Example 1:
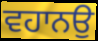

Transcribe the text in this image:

ਵਹਾਨਉ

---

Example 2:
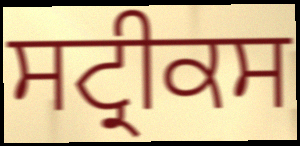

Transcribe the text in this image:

ਸਟ੍ਰੀਕਸ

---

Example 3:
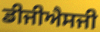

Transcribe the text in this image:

ਡੀਜੀਐਸਜੀ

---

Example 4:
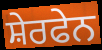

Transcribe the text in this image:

ਸ਼ੇਰਫੇਨ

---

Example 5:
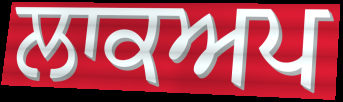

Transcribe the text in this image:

ਲਾਕਅਪ